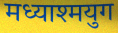
मध्याश्मयुग